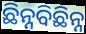
ଛିନ୍ନବିଛିନ୍ନ